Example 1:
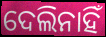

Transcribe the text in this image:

ଦେଲିନାହିଁ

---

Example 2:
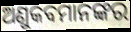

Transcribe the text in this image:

ଅଣୁକବମାନଙ୍କର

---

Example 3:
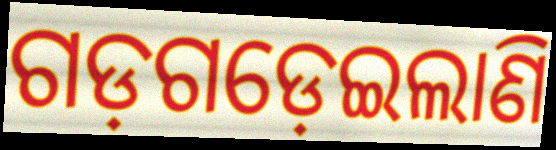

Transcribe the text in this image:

ଗଡ଼ଗଡ଼େଇଲାଣି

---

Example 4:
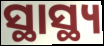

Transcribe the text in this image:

ସ୍ଥାସ୍ଥ୍ୟ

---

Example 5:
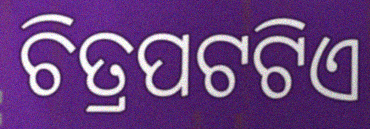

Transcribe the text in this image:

ଚିତ୍ରପଟଟିଏ